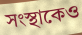
সংস্থাকেও